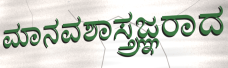
ಮಾನವಶಾಸ್ತ್ರಜ್ಞರಾದ